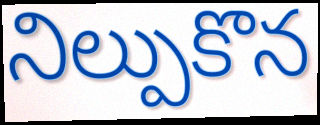
నిల్పుకొన